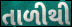
તાળીથી